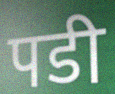
पडी